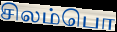
சிலம்பொ